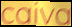
caiva